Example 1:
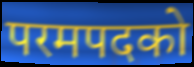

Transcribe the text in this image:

परमपदको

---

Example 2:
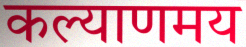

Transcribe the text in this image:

कल्याणमय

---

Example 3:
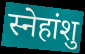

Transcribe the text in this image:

स्नेहांशु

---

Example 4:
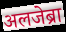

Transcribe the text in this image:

अलजेब्रा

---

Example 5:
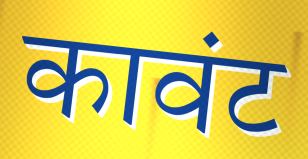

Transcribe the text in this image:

कावंट